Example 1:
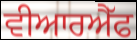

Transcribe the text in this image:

ਵੀਆਰਐੱਫ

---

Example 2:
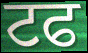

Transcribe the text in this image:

ਟਫ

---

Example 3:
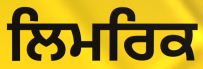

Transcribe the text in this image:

ਲਿਮਰਿਕ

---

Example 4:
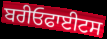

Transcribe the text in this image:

ਬਰੀਓਫਾਈਟਸ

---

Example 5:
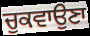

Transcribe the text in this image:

ਚੁਕਵਾਉਣਾ